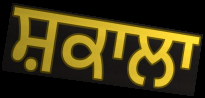
ਸ਼ਕਾਲਾ